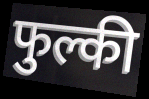
फुल्की